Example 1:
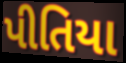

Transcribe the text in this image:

પીતિયા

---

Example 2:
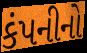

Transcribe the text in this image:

કંપનીનો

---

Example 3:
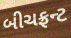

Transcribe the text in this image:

બીચફ્રન્ટ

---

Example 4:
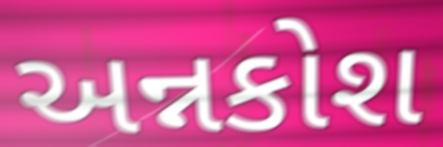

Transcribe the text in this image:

અન્નકોશ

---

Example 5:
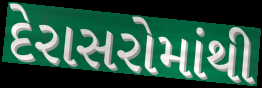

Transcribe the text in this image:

દેરાસરોમાંથી